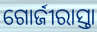
ଗୋର୍ଜୀରାସ୍ତା